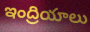
ఇంద్రియాలు